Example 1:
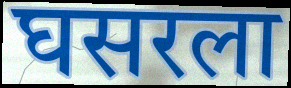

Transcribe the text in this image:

घसरला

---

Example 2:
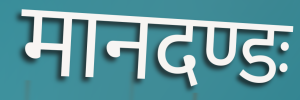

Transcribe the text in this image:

मानदण्डः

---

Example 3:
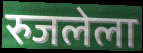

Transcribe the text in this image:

रुजलेला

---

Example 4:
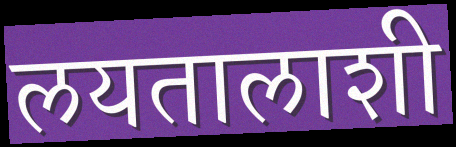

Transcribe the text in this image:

लयतालाशी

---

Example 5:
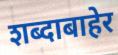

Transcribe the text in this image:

शब्दाबाहेर